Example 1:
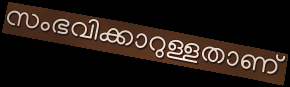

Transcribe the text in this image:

സംഭവിക്കാറുള്ളതാണ്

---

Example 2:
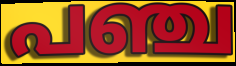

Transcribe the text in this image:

പഞ്ച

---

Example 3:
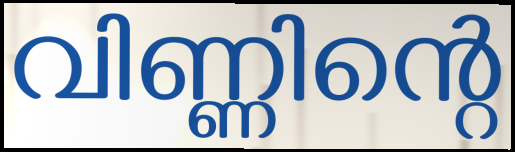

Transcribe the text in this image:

വിണ്ണിന്റെ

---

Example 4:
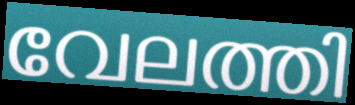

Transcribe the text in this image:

വേലത്തി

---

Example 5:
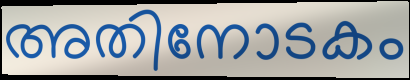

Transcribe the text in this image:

അതിനോടകം